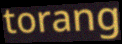
torang